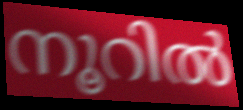
നൂറിൽ